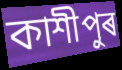
কাশীপুৰ